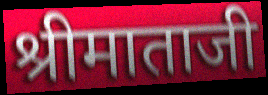
श्रीमाताजी